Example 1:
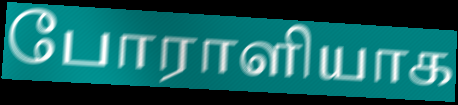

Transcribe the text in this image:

போராளியாக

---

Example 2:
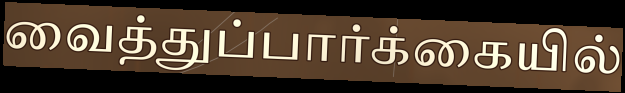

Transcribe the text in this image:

வைத்துப்பார்க்கையில்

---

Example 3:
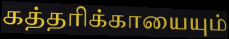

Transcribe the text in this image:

கத்தரிக்காயையும்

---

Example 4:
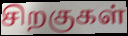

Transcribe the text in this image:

சிறகுகள்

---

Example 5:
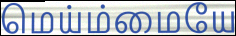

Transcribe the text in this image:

மெய்ம்மையே